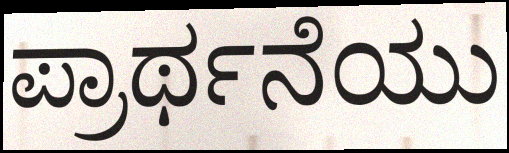
ಪ್ರಾರ್ಥನೆಯು